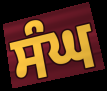
ਸੰਘ